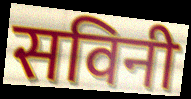
सविनी